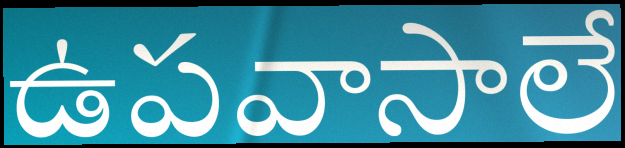
ఉపవాసాలే